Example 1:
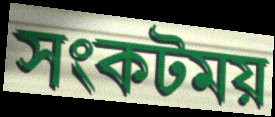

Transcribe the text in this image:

সংকটময়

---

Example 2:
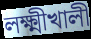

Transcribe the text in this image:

লক্ষ্মীখালী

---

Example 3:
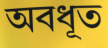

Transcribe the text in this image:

অবধূত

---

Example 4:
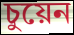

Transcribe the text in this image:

চুয়েন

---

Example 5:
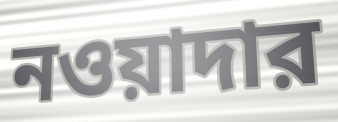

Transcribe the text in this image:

নওয়াদার